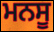
ਮਨਸੂ